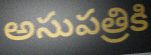
అసుపత్రికి